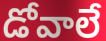
డోవాలే